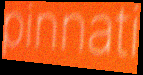
pinnati